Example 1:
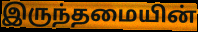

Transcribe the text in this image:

இருந்தமையின்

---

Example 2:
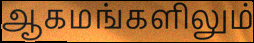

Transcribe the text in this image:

ஆகமங்களிலும்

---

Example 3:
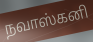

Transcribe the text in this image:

நவாஸ்கனி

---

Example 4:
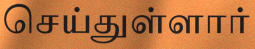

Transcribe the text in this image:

செய்துள்ளார்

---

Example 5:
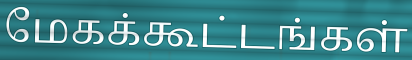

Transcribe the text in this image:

மேகக்கூட்டங்கள்